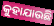
କୁହାଯାଉଛି